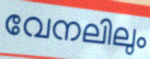
വേനലിലും